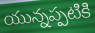
యున్నప్పటికి